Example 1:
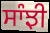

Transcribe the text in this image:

ਸਾੰਝੀ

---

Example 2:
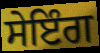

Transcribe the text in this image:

ਸੇਇੰਗ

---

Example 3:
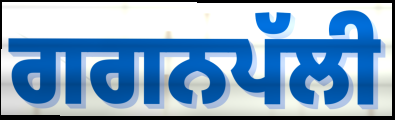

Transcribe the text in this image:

ਗਗਨਪੱਲੀ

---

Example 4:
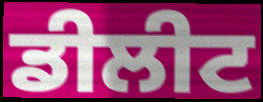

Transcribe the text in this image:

ਡੀਲੀਟ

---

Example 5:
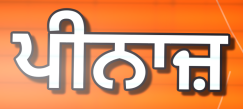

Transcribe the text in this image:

ਪੀਨਾਜ਼